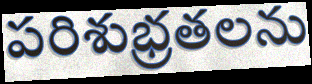
పరిశుభ్రతలను